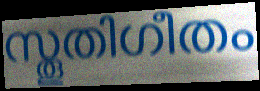
സ്തൂതിഗീതം